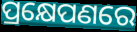
ପ୍ରକ୍ଷେପଣରେ